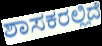
ಶಾಸಕರಲ್ಲಿದೆ